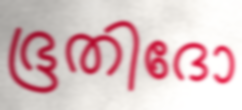
ഭൂതിദോ